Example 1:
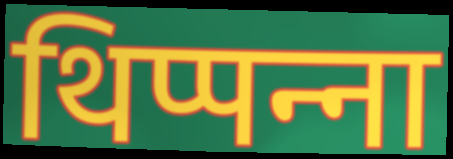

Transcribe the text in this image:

थिप्पन्ना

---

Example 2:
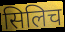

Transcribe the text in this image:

सिलिच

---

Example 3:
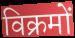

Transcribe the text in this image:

विक्रमों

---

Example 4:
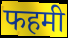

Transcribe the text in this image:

फहमी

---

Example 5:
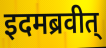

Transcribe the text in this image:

इदमब्रवीत्